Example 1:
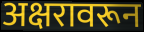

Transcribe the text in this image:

अक्षरावरून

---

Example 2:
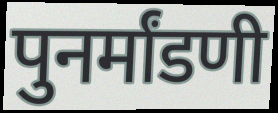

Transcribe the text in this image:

पुनर्मांडणी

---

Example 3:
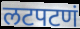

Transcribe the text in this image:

लटपटणं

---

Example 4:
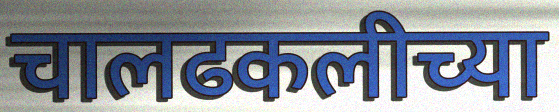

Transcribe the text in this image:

चालढकलीच्या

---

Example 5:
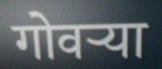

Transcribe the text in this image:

गोवर्‍या